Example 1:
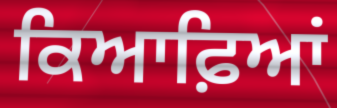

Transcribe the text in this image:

ਕਿਆਫ਼ਿਆਂ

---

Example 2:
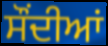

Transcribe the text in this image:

ਸੌਂਦੀਆਂ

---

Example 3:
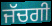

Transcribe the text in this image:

ਜੱਚਗੀ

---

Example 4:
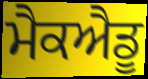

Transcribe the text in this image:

ਮੈਕਐਡੂ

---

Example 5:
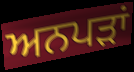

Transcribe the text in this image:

ਅਨਪੜਾਂ